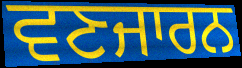
ਵਣਜਾਰਨ